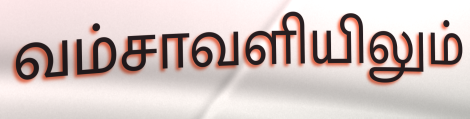
வம்சாவளியிலும்